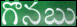
గొనబు